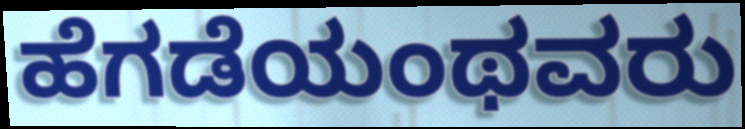
ಹೆಗಡೆಯಂಥವರು